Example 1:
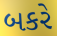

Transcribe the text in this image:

બકરે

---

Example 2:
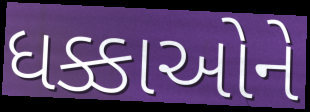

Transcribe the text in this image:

ધક્કાઓને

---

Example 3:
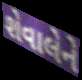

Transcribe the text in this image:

શેવાલેને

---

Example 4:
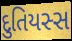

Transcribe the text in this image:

દુતિયસ્સ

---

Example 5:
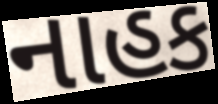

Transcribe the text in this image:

નાહક